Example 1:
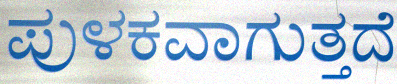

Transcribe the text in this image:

ಪುಳಕವಾಗುತ್ತದೆ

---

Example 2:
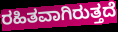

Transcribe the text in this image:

ರಹಿತವಾಗಿರುತ್ತದೆ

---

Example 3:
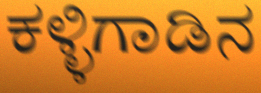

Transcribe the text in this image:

ಕಳ್ಳಿಗಾಡಿನ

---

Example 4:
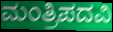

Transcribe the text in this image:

ಮಂತ್ರಿಪದವಿ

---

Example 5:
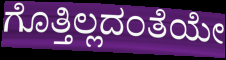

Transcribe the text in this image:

ಗೊತ್ತಿಲ್ಲದಂತೆಯೇ